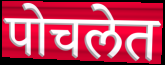
पोचलेत